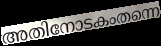
അതിനോടകംതന്നെ